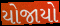
યોજાયો